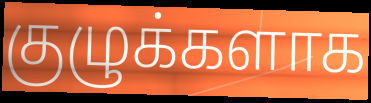
குழுக்களாக